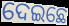
ଦେଇଛେ